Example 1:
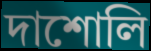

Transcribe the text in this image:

দাশোলি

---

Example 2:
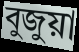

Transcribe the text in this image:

বুজুয়া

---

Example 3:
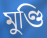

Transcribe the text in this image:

মুণ্ডি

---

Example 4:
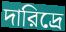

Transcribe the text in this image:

দারিদ্রে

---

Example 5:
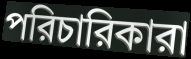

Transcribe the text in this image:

পরিচারিকারা